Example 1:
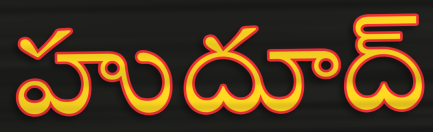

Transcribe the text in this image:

హుదూద్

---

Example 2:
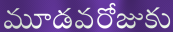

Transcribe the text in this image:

మూడవరోజుకు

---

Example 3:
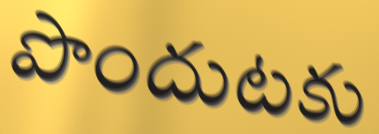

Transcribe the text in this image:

పొందుటకు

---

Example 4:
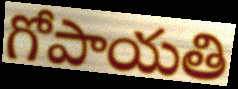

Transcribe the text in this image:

గోపాయతి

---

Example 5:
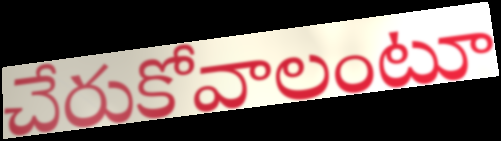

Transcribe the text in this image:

చేరుకోవాలంటూ